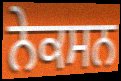
ਨੇਕਸਨ